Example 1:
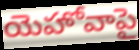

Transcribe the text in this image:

యెహోవాపై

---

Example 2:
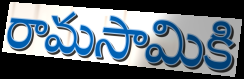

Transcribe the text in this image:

రామసామికి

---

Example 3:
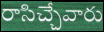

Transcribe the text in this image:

రాసిచ్చేవారు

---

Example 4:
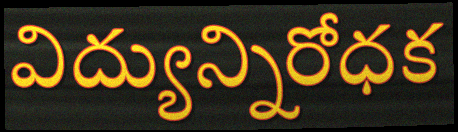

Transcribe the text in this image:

విద్యున్నిరోధక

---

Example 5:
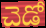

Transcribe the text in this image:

చెడో